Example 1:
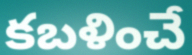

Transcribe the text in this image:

కబళించే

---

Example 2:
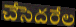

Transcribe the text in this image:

చేసెదరేల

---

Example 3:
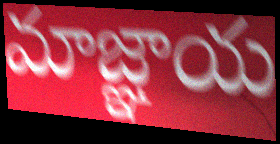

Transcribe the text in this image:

మాజ్ఞాయ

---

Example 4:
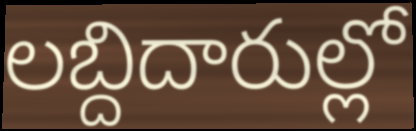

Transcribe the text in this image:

లబ్దిదారుల్లో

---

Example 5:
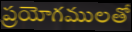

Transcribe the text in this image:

ప్రయోగములతో